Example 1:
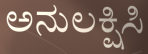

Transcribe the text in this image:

ಅನುಲಕ್ಷಿಸಿ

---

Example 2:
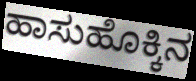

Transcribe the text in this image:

ಹಾಸುಹೊಕ್ಕಿನ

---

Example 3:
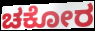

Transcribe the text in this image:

ಚಕೋರ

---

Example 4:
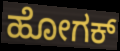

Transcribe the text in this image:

ಹೋಗಕ್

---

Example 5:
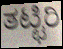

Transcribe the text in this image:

ತಟ್ಟಿರಿ